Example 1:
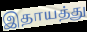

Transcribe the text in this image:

இதாயத்து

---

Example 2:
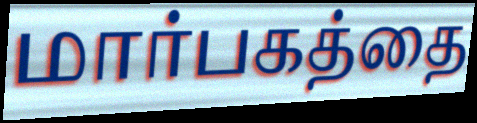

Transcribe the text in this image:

மார்பகத்தை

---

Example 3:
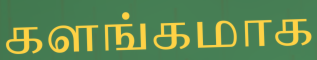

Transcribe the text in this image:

களங்கமாக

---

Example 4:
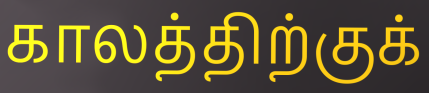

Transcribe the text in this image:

காலத்திற்குக்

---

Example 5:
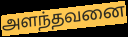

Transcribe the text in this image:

அளந்தவனை